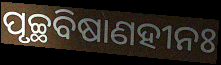
ପୃଚ୍ଛବିଷାଣହୀନଃ